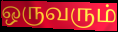
ஒருவரும்